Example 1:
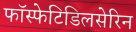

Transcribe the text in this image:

फॉस्फेटिडिलसेरिन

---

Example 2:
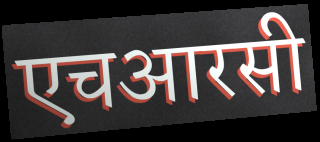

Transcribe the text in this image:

एचआरसी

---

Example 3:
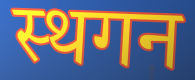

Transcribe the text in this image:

स्थगन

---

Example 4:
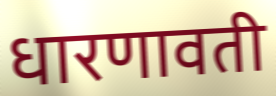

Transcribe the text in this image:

धारणावती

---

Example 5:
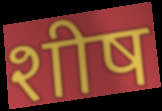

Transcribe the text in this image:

शीष